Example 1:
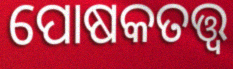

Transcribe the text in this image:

ପୋଷକତତ୍ତ୍ବ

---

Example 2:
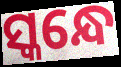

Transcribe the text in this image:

ସ୍କନ୍ଧେ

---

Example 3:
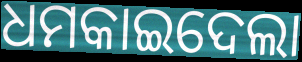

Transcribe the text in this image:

ଧମକାଇଦେଲା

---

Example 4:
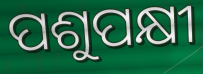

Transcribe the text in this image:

ପଶୁପକ୍ଷୀ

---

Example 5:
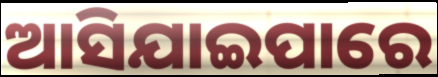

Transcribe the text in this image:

ଆସିଯାଇପାରେ